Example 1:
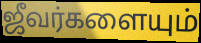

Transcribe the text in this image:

ஜீவர்களையும்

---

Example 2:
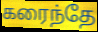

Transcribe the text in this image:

கரைந்தே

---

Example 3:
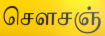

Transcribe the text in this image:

செளசஞ்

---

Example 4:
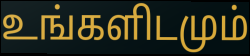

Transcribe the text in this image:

உங்களிடமும்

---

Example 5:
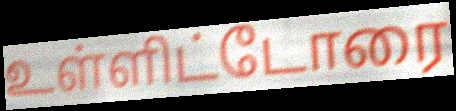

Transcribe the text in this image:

உள்ளிட்டோரை